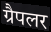
ग्रैपलर